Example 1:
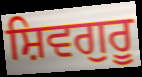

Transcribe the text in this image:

ਸ਼ਿਵਗੁਰੂ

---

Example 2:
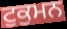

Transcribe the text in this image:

ਟੁਕੁਮਨ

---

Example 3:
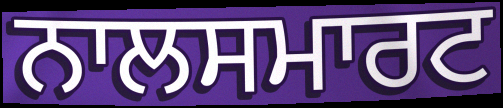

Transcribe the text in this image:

ਨਾਲਸਮਾਰਟ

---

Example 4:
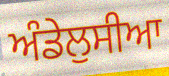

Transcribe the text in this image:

ਅੰਡੇਲੁਸੀਆ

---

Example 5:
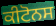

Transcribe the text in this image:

ਕੀਟੋਨਸ